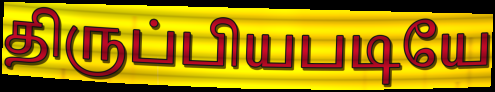
திருப்பியபடியே